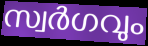
സ്വർഗവും